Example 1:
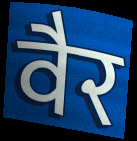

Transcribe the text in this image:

वैर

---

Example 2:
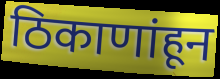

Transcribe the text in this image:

ठिकाणांहून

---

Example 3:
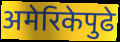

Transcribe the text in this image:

अमेरिकेपुढे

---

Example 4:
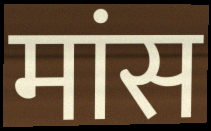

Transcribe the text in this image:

मांस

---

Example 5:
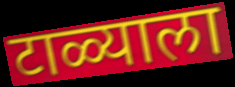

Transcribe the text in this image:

टाळ्याला